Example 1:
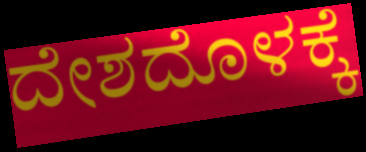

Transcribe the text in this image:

ದೇಶದೊಳಕ್ಕೆ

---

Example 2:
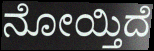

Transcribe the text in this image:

ನೋಯ್ತಿದೆ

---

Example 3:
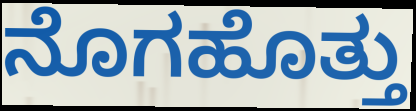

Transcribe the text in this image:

ನೊಗಹೊತ್ತು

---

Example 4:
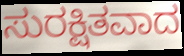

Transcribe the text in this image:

ಸುರಕ್ಷಿತವಾದ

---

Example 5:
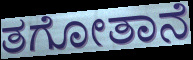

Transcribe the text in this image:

ತಗೋತಾನೆ